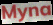
Myna